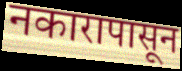
नकारापासून